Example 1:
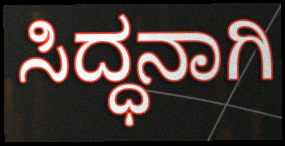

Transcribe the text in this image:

ಸಿದ್ಧನಾಗಿ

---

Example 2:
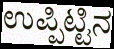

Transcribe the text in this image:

ಉಪ್ಪಿಟ್ಟಿನ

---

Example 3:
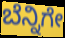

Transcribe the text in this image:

ಬೆನ್ನಿಗೇ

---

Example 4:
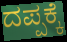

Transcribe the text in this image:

ದಪ್ಪಕ್ಕೆ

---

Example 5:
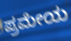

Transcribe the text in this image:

ಪ್ರಮೇಯ